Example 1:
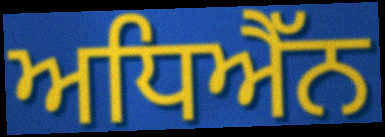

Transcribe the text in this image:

ਅਧਿਐੱਨ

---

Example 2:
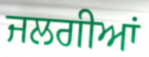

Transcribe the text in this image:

ਜਲਗੀਆਂ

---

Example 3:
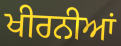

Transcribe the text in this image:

ਖੀਰਨੀਆਂ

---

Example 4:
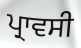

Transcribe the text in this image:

ਪ੍ਰਾਵਸੀ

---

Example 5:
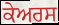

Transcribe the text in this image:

ਕੇਅਰਸ